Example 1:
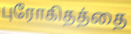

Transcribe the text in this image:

புரோகிதத்தை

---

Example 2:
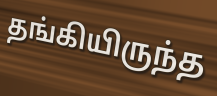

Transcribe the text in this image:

தங்கியிருந்த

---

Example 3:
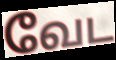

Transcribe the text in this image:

வேட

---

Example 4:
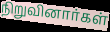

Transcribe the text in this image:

நிறுவினார்கள்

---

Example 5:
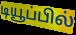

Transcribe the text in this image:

டியூப்பில்